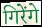
गिरेंगे